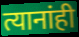
त्यानांही